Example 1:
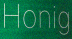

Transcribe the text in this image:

Honig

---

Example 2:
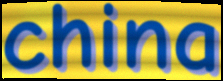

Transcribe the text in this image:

china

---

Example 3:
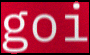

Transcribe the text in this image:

goi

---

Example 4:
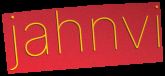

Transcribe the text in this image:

jahnvi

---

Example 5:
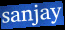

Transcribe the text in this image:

sanjay